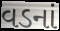
વડનાં